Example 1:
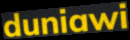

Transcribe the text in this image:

duniawi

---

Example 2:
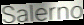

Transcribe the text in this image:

Salerno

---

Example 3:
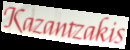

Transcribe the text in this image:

Kazantzakis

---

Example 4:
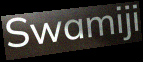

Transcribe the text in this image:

Swamiji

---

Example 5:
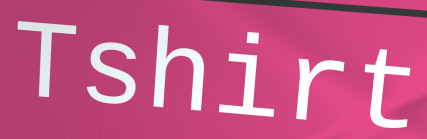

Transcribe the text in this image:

Tshirt